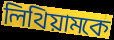
লিথিয়ামকে